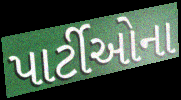
પાર્ટીઓના